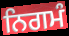
ਨਿਗਮੰ